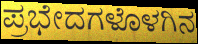
ಪ್ರಭೇದಗಳೊಳಗಿನ